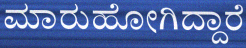
ಮಾರುಹೋಗಿದ್ದಾರೆ